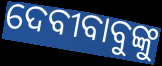
ଦେବୀବାବୁଙ୍କୁ